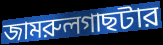
জামরুলগাছটার